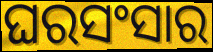
ଘରସଂସାର